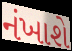
નંખાશે